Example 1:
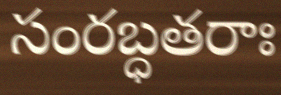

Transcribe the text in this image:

సంరబ్ధతరాః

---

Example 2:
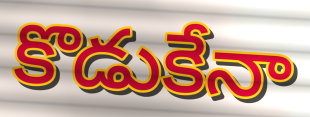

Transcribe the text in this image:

కొడుకేనా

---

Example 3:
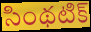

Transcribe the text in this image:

సింథటిక్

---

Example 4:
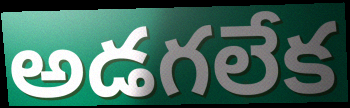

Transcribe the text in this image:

అడగలేక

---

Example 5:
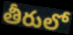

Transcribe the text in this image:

తీరులో